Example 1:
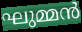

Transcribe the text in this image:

ഘുമ്മൻ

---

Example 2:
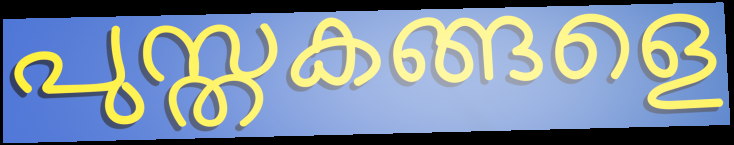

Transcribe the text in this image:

പുസ്തകങ്ങളെ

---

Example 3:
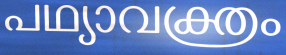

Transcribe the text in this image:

പഥ്യാവക്ത്രം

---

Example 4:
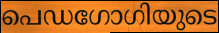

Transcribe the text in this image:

പെഡഗോഗിയുടെ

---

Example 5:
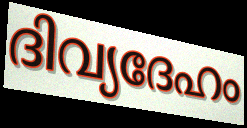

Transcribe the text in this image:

ദിവ്യദേഹം